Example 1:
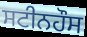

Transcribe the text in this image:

ਸਟੀਨਹੌਸ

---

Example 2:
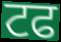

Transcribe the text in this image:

ਟਫ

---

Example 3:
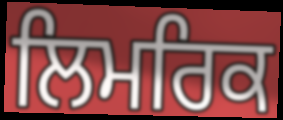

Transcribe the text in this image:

ਲਿਮਰਿਕ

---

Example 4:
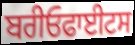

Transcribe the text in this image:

ਬਰੀਓਫਾਈਟਸ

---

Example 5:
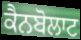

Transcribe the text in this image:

ਕੈਨਬੋਲਾਟ